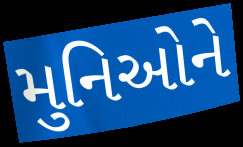
મુનિઓને